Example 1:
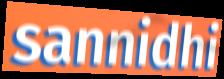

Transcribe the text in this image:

sannidhi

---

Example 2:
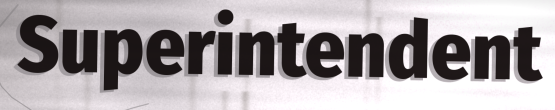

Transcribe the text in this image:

Superintendent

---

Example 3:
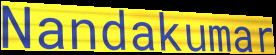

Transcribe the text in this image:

Nandakumar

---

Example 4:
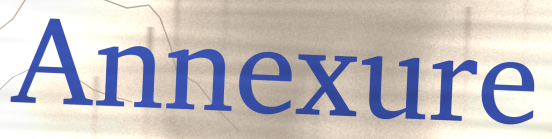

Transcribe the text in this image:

Annexure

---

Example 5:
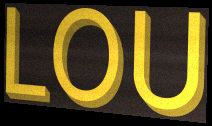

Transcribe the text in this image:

LOU